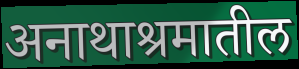
अनाथाश्रमातील